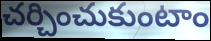
చర్చించుకుంటాం